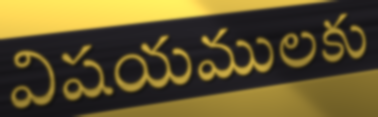
విషయములకు